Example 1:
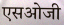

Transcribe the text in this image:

एसओजी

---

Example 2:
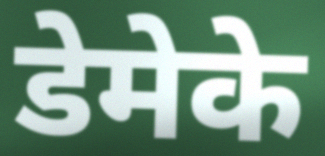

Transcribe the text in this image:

डेमेके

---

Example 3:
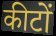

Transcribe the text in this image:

कीटों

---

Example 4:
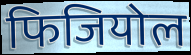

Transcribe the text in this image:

फिजियोल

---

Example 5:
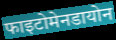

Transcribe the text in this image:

फाइटोमेनडायोन